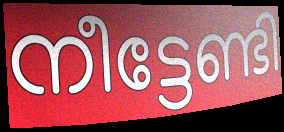
നീട്ടേണ്ടി